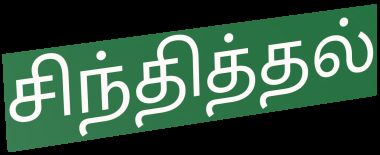
சிந்தித்தல்